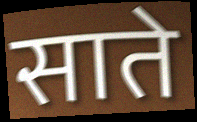
साते